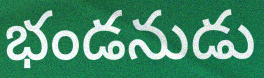
భండనుడు